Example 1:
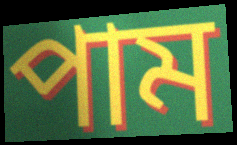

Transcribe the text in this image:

পাম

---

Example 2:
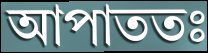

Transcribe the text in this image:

আপাততঃ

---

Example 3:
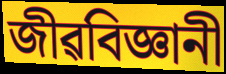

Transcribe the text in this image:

জীৱবিজ্ঞানী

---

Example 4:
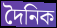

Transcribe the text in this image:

দৈনিক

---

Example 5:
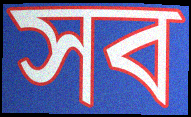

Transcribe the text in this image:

সব